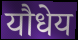
यौधेय